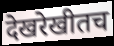
देखरेखीतच